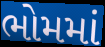
ભોમમાં